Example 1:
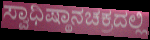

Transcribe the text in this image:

ಸ್ವಾಧಿಷ್ಠಾನಚಕ್ರದಲ್ಲಿ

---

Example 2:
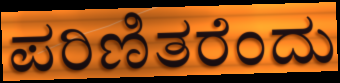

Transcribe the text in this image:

ಪರಿಣಿತರೆಂದು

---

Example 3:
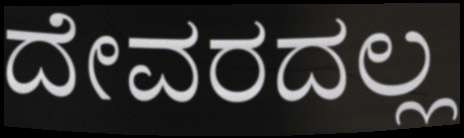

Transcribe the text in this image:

ದೇವರದಲ್ಲ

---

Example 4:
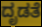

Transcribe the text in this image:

ದೃಡತೆ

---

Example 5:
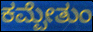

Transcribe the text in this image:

ಕಮ್ಪೇತುಂ